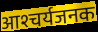
आश्चर्यजनक